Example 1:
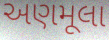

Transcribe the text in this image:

અણમૂલા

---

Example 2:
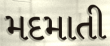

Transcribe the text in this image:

મદમાતી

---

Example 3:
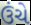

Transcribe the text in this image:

ઉંચે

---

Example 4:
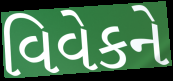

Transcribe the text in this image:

વિવેકને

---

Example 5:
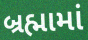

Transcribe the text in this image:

બ્રહ્મામાં